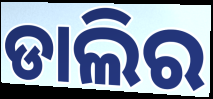
ଡାଲିର